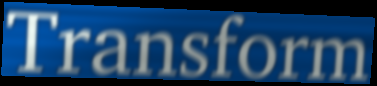
Transform